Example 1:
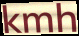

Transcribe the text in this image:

kmh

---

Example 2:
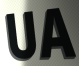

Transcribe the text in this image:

UA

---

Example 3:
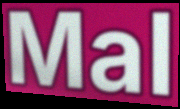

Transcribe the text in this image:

Mal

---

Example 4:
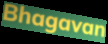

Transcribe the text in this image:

Bhagavan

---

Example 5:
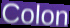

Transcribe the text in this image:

Colon